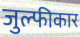
जुल्फीकार